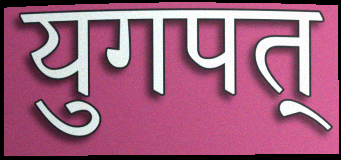
युगपत्